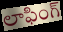
లాఫింగ్